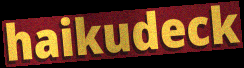
haikudeck